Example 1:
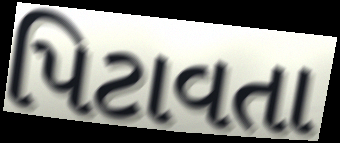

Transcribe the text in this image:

પિટાવતા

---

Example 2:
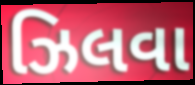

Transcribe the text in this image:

ઝિલવા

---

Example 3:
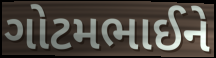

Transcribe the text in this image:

ગોટમભાઈને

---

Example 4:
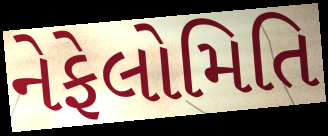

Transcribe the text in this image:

નેફેલોમિતિ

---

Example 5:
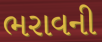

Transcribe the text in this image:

ભરાવની